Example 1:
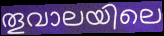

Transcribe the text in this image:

തൂവാലയിലെ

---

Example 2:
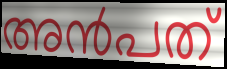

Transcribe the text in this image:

അൻപത്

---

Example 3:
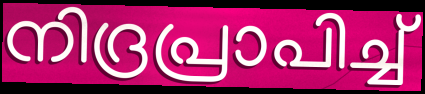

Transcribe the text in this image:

നിദ്രപ്രാപിച്ച്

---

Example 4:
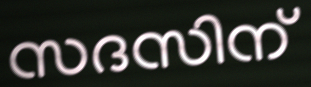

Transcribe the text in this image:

സദസിന്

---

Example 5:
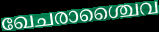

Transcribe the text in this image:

ഖേചരാശ്ചൈവ